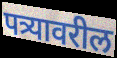
पत्र्यावरील